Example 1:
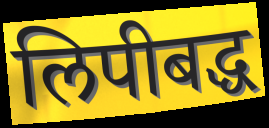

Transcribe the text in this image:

लिपीबद्ध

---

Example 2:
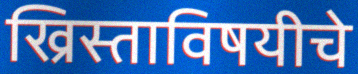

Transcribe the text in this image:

ख्रिस्ताविषयीचे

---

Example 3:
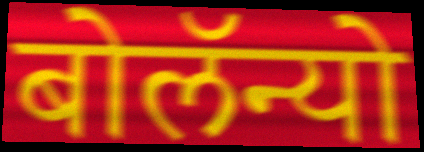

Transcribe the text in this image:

बोलॅन्यो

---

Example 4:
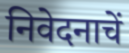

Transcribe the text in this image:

निवेदनाचें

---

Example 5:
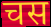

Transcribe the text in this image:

चस